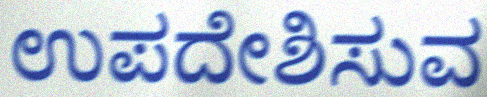
ಉಪದೇಶಿಸುವ